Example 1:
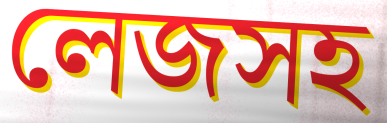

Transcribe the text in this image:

লেজসহ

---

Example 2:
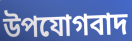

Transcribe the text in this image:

উপযোগবাদ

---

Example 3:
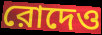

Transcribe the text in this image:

রোদেও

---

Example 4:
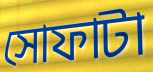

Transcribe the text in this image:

সোফাটা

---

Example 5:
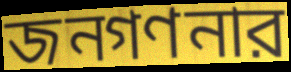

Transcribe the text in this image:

জনগণনার